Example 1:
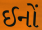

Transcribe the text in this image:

ઈનોં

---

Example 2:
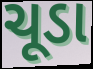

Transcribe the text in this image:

ચૂડા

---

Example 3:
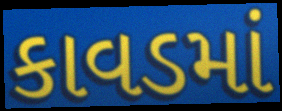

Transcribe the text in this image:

કાવડમાં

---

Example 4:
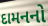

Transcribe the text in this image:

દામનનો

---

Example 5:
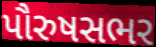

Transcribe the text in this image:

પૌરુષસભર